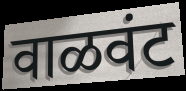
वाळवंट